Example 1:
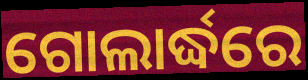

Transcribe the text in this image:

ଗୋଲାର୍ଦ୍ଧରେ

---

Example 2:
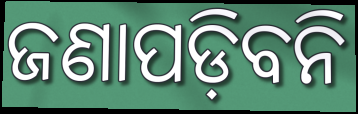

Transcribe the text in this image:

ଜଣାପଡ଼ିବନି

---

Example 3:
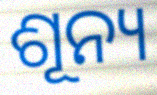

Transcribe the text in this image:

ଶୂନ୍ୟ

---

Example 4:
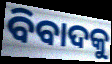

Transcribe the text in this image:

ବିବାଦକୁ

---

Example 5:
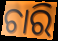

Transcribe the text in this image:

ଚାରି